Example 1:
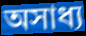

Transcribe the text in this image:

অসাধ্য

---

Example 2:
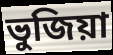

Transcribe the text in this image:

ভুজিয়া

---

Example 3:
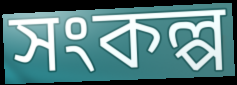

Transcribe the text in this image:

সংকল্প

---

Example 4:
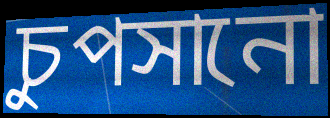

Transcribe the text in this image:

চুপসানো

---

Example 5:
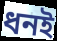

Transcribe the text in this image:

ধনই